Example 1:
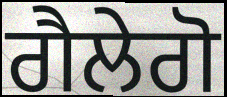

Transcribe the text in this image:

ਗੈਲੇਗੋ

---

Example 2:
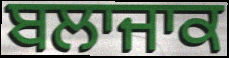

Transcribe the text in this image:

ਬਲਾਜਾਕ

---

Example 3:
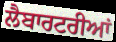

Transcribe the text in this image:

ਲੈਬਾਰਟਰੀਆਂ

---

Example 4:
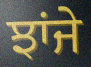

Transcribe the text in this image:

ਝਾਂਜੇ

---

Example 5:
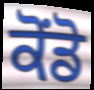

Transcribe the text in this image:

ਕੋਂਡੋ